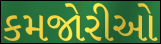
કમજોરીઓ